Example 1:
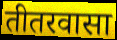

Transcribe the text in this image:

तीतरवासा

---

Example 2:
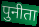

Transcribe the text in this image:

पुनीता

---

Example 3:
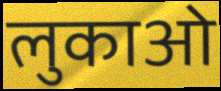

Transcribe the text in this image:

लुकाओ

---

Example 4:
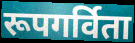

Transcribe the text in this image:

रूपगर्विता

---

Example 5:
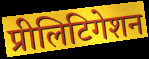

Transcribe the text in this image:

प्रीलिटिगेशन